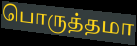
பொருத்தமா